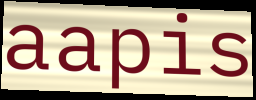
aapis